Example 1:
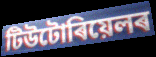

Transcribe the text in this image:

টিউটোৰিয়েলৰ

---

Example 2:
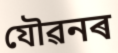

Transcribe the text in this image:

যৌৱনৰ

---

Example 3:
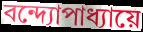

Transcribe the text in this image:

বন্দ্যোপাধ্যায়ে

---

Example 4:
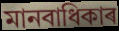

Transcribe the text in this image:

মানবাধিকাৰ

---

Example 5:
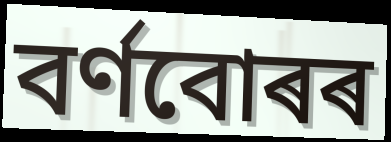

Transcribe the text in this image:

বৰ্ণবোৰৰ